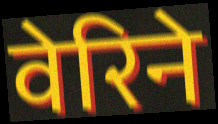
वेरिने